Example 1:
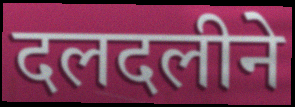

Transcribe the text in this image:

दलदलीने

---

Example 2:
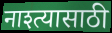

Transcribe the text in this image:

नाश्त्यासाठी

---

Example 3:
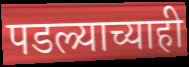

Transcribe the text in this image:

पडल्याच्याही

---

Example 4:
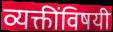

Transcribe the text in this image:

व्यक्तींविषयी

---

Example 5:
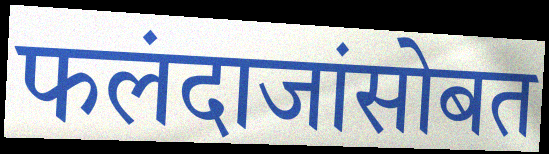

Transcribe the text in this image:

फलंदाजांसोबत